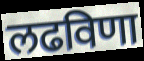
लढविणा